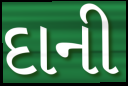
દાની